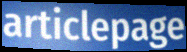
articlepage